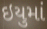
ઇયુમાં